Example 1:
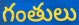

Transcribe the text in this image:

గంతులు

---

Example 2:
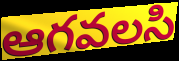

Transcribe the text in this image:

ఆగవలసి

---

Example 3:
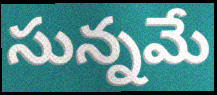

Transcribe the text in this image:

సున్నమే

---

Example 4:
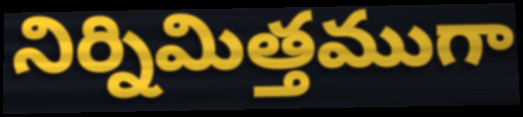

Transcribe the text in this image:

నిర్నిమిత్తముగా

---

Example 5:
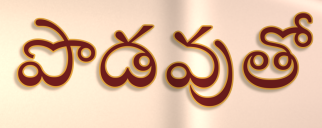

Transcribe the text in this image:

పొడవుతో